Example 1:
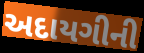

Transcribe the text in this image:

અદાયગીની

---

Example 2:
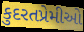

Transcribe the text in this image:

કુદરતપ્રેમીઓ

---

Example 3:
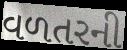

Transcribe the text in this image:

વળતરની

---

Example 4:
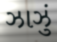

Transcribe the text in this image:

ઝાઝું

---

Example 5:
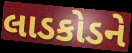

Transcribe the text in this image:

લાડકોડને